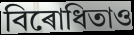
বিৰোধিতাও